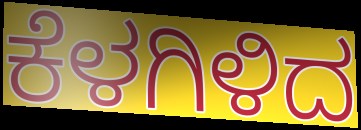
ಕೆಳಗಿಳಿದ